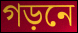
গড়নে